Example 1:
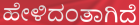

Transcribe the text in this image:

ಹೇಳಿದಂತಾಗಿದೆ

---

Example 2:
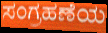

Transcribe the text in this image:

ಸಂಗ್ರಹಣೆಯ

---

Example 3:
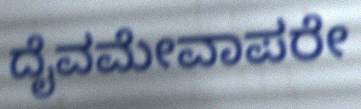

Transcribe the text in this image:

ದೈವಮೇವಾಪರೇ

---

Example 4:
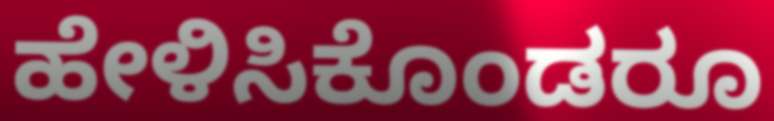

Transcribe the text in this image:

ಹೇಳಿಸಿಕೊಂಡರೂ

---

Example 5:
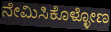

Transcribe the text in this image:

ನೇಮಿಸಿಕೊಳ್ಳೋಣ